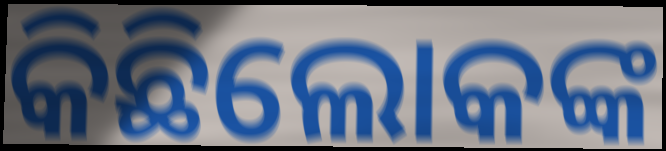
କିଛିଲୋକଙ୍କ